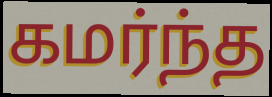
கமர்ந்த